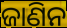
ଜାଣିନ